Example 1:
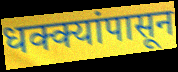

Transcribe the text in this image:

धक्क्यांपासून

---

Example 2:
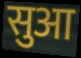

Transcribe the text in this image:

सुआ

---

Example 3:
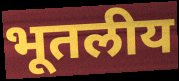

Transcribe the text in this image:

भूतलीय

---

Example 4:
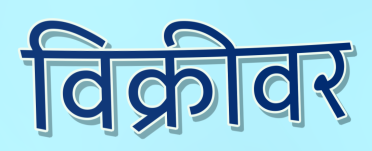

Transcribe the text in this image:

विक्रीवर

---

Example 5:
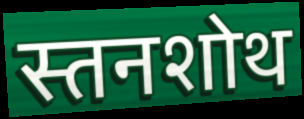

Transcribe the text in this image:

स्तनशोथ